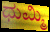
ಧುಮ್ಮಿ